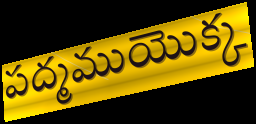
పద్మముయొక్క